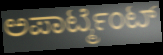
ಅಪಾರ್ಟ್ಮೆಂಟ್